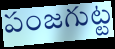
పంజగుట్ట